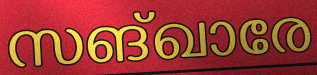
സങ്ഖാരേ